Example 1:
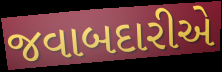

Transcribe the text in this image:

જવાબદારીએ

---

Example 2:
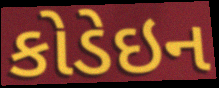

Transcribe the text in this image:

કોડેઇન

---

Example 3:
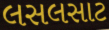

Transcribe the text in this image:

લસલસાટ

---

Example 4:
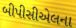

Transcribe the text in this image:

બીપીસીએલના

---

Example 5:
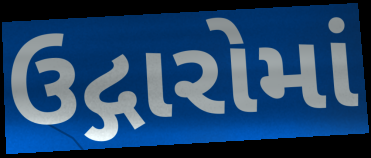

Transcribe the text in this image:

ઉદ્ગારોમાં